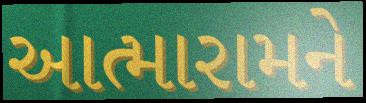
આત્મારામને